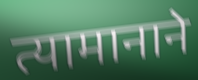
त्यामानाने